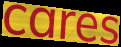
cares